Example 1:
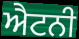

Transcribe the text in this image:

ਐਟਨੀ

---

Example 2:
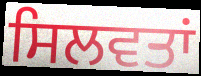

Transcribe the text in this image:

ਸਿਲਵਤਾਂ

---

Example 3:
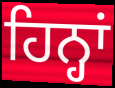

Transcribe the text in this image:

ਹਿਨ੍ਹਾਂ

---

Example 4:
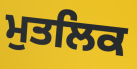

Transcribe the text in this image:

ਮੁਤਲਿਕ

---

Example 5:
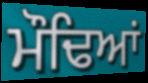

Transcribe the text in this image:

ਮੌਢਿਆਂ